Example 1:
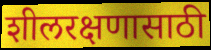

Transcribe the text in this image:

शीलरक्षणासाठी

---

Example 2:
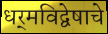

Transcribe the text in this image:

धर्मविद्वेषाचे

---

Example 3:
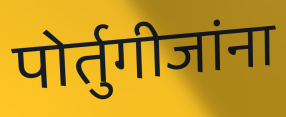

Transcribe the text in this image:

पोर्तुगीजांना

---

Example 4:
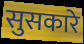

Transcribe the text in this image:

सुसकारे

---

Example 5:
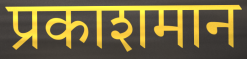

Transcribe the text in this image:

प्रकाशमान